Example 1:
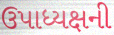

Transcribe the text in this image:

ઉપાધ્યક્ષની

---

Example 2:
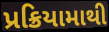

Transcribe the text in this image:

પ્રક્રિયામાથી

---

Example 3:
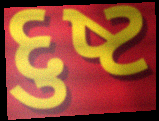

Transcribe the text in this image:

દુષ્ટ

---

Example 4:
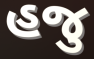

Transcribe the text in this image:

હજુ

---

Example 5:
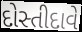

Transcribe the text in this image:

દોસ્તીદાવે